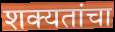
शक्यतांचा